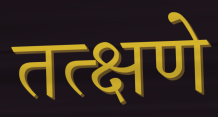
तत्क्षणे